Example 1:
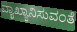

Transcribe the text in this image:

ವ್ಯಾಖ್ಯಾನಿಸುವಂತೆ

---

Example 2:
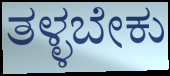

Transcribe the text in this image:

ತಳ್ಳಬೇಕು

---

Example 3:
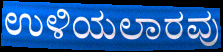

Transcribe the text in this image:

ಉಳಿಯಲಾರವು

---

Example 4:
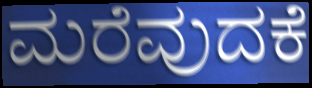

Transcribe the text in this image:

ಮರೆವುದಕೆ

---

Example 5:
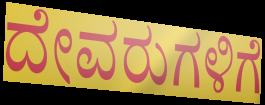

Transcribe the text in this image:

ದೇವರುಗಳಿಗೆ